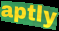
aptly